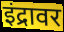
इंद्रावर